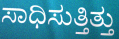
ಸಾಧಿಸುತ್ತಿತ್ತು